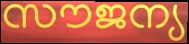
സൗജന്യ